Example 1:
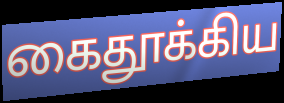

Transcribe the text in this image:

கைதூக்கிய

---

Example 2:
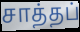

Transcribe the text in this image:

சாத்தப்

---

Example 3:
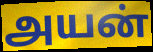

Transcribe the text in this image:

அயன்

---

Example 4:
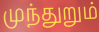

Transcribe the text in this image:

முந்துறும்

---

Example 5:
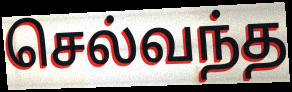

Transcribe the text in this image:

செல்வந்த